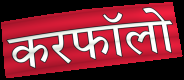
करफॉलो